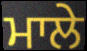
ਮਾਲੇ